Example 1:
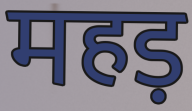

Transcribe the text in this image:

महड़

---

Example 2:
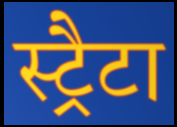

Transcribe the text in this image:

स्ट्रैटा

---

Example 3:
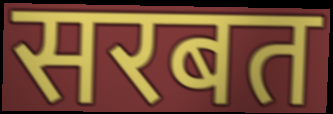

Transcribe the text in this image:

सरबत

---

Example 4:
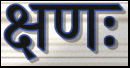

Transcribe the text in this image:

क्षणः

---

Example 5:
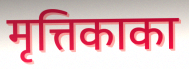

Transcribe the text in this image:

मृत्तिकाका